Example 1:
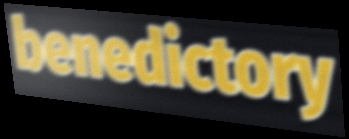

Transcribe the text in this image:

benedictory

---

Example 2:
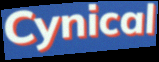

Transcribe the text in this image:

Cynical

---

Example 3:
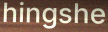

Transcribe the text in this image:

hingshe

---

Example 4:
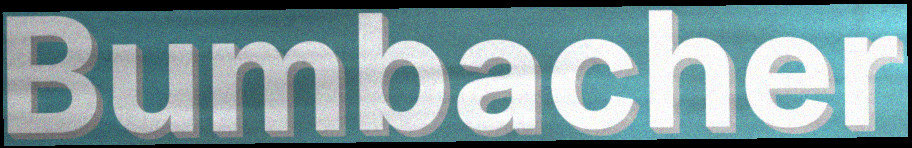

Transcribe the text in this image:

Bumbacher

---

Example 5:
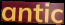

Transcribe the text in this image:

antic